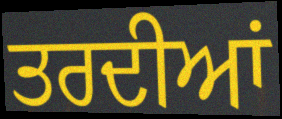
ਤਰਦੀਆਂ